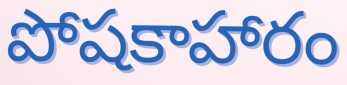
పోషకాహారం